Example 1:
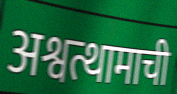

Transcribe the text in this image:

अश्वत्थामाची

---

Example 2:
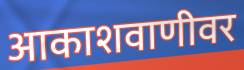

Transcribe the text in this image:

आकाशवाणीवर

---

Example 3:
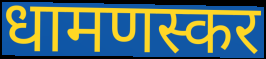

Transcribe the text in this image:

धामणस्कर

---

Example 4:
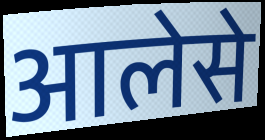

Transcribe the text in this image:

आलेसे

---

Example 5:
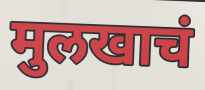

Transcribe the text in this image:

मुलखाचं